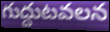
గుద్దుటవలన